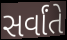
સર્વાંતે